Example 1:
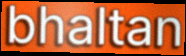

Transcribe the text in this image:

bhaltan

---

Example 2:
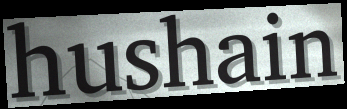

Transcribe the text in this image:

hushain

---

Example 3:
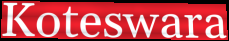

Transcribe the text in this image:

Koteswara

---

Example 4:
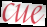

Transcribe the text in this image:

cue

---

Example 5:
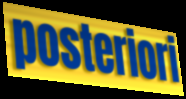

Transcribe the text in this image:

posteriori